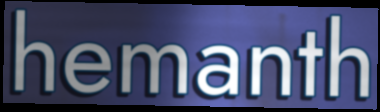
hemanth